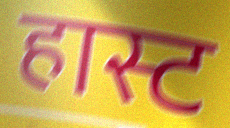
हास्ट